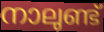
നാലുണ്ട്